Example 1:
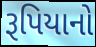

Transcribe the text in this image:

રૂપિયાનો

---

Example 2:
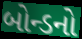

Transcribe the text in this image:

બોન્ડનો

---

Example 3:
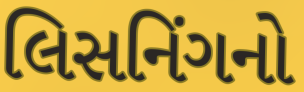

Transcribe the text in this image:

લિસનિંગનો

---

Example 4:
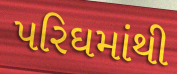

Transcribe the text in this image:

પરિઘમાંથી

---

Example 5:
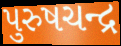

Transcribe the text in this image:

પુરુષચન્દ્ર